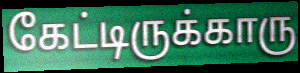
கேட்டிருக்காரு